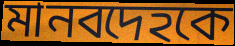
মানবদেহকে